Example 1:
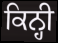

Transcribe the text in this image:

ਕਿਨ੍ਹੀ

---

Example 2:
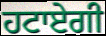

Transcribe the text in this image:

ਹਟਾਏਗੀ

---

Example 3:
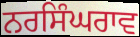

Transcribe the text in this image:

ਨਰਸਿੰਘਰਾਵ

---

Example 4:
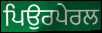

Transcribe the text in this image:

ਪਿਉਰਪੇਰਲ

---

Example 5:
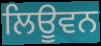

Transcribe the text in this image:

ਲਿਊਵਨ